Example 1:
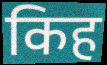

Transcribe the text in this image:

किह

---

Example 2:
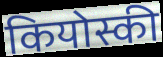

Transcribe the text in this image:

कियोस्की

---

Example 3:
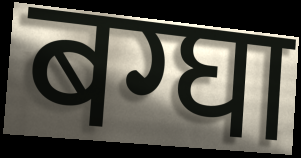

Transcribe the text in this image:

बग्घा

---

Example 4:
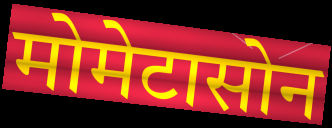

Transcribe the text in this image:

मोमेटासोन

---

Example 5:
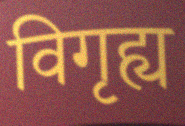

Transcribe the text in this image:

विगृह्य